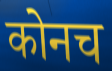
कोनच